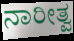
ನಾರೀತ್ವ